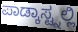
ಪಾಡ್ಕಾಸ್ಟ್ನಲ್ಲಿ